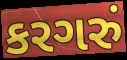
કરગરું